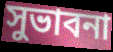
সুভাবনা